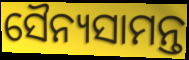
ସୈନ୍ୟସାମନ୍ତ